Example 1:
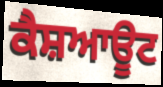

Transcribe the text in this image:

ਕੈਸ਼ਆਊਟ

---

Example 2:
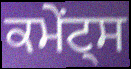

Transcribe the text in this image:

ਕਮੇਂਟ੍ਸ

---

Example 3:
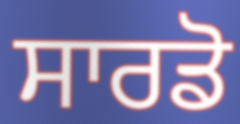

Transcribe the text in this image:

ਸਾਰਡੋ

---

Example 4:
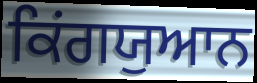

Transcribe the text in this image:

ਕਿਂਗਯੁਆਨ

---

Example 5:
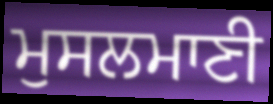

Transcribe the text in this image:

ਮੁਸਲਮਾਣੀ